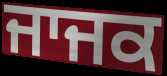
ਜਾਜਕ